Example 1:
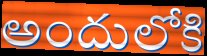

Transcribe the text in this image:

అందులోకి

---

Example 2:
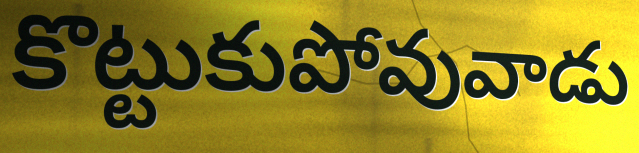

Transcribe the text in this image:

కొట్టుకుపోవువాడు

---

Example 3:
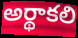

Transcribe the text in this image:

అర్థాకలి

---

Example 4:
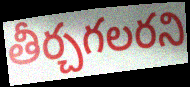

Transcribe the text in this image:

తీర్చగలరని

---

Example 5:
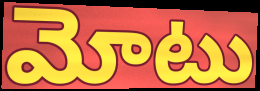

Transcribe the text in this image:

మోటు